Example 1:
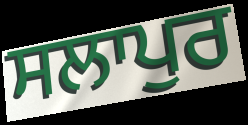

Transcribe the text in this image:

ਸਲਾਪੁਰ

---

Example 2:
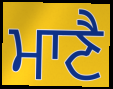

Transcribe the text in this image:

ਮਾਣੈ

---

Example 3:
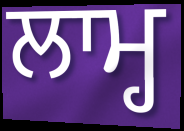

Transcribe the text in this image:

ਲਾਮ੍ਹ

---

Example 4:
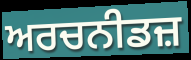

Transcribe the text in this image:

ਅਰਚਨੀਡਜ਼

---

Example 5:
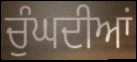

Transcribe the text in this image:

ਚੁੰਘਦੀਆਂ